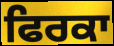
ਫਿਰਕਾ